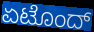
ಏಟೊಂದ್